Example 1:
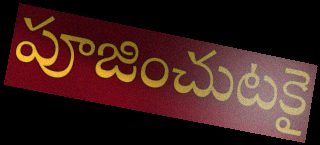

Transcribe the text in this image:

పూజించుటకై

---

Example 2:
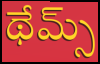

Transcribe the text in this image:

థేమ్స్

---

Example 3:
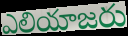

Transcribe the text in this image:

ఎలియాజరు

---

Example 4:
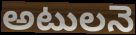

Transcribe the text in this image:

అటులనె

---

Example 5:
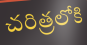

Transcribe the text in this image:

చరిత్రలోకి